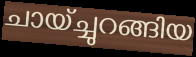
ചായ്ച്ചുറങ്ങിയ